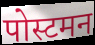
पोस्टमन